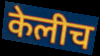
केलीच